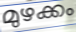
മുഴക്കം